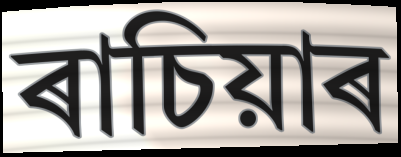
ৰাচিয়াৰ